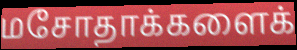
மசோதாக்களைக்